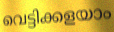
വെട്ടിക്കളയാം